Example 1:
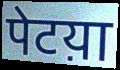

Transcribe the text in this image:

पेटय़ा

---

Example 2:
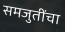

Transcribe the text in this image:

समजुतींचा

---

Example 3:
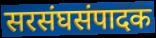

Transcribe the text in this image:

सरसंघसंपादक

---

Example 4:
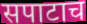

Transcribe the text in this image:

सपाटाच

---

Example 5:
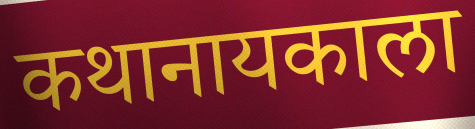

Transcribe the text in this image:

कथानायकाला